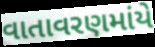
વાતાવરણમાંયે